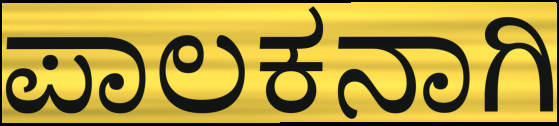
ಪಾಲಕನಾಗಿ